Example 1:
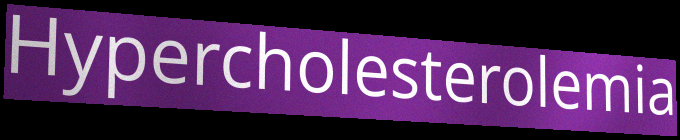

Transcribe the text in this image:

Hypercholesterolemia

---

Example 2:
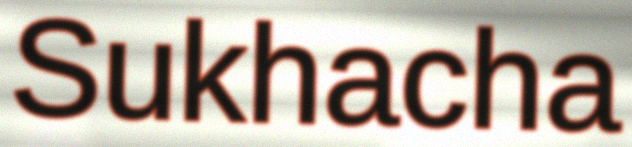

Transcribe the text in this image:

Sukhacha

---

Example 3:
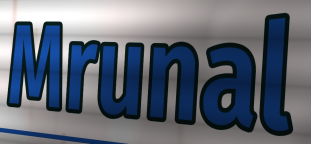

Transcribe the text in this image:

Mrunal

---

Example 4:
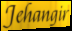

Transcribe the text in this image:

Jehangir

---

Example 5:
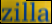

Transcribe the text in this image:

zilla